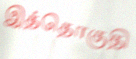
இத்தொகுதி